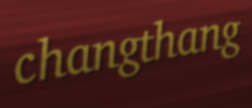
changthang